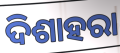
ଦିଶାହରା